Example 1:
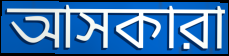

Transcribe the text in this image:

আসকারা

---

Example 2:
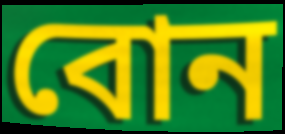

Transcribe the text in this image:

বোন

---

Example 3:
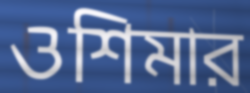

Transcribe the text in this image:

ওশিমার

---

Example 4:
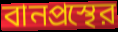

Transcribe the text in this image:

বানপ্রস্থের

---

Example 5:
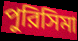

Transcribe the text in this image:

পুরিসিমা